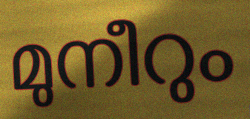
മുനീറും